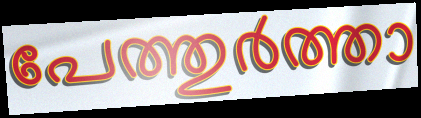
പേത്തുർത്താ